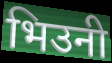
भिउनी